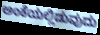
ಅಂಕೆಯಲ್ಲಿಡುವುದು